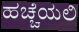
ಹಚ್ಚೆಯಲಿ